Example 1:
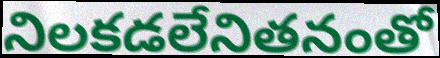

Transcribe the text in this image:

నిలకడలేనితనంతో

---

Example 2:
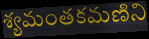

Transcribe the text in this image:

శ్యమంతకమణిని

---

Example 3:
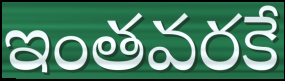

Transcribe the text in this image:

ఇంతవరకే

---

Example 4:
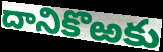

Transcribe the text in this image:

దానికొఱకు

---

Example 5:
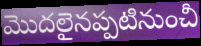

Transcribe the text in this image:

మొదలైనప్పటినుంచీ